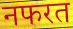
नफरत